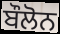
ਬੌਲੋਨ